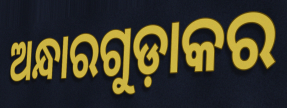
ଅନ୍ଧାରଗୁଡ଼ାକର